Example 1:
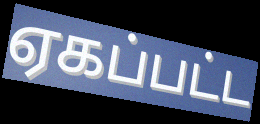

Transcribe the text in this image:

ஏகப்பட்ட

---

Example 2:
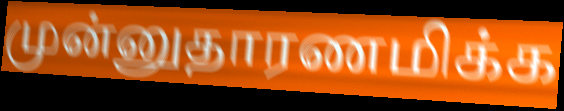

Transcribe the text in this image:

முன்னுதாரணமிக்க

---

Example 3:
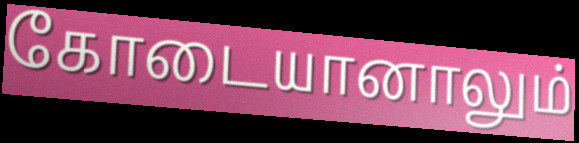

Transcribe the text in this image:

கோடையானாலும்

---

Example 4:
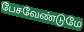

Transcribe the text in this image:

பேசவேண்டுமே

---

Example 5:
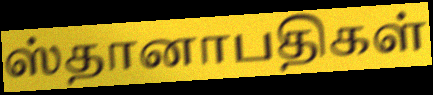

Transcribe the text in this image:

ஸ்தானாபதிகள்